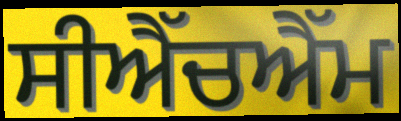
ਸੀਐੱਚਐੱਮ